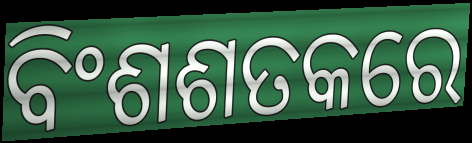
ବିଂଶଶତକରେ